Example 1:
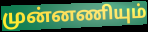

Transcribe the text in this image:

முன்னணியும்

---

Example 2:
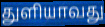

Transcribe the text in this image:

துளியாவது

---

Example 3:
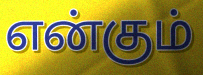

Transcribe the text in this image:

என்கும்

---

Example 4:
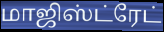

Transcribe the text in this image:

மாஜிஸ்ட்ரேட்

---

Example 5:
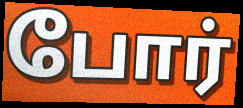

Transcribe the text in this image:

போர்